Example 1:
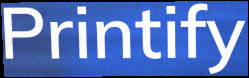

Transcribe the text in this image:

Printify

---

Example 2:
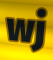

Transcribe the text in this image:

wj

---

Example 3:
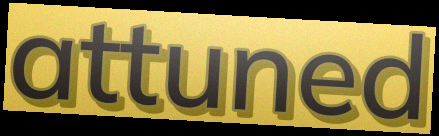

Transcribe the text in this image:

attuned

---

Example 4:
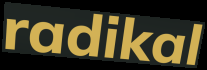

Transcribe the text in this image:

radikal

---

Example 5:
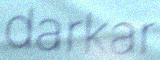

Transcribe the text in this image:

darkar